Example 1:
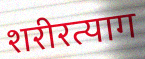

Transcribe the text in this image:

शरीरत्याग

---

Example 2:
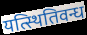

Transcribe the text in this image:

यत्स्थितिवन्ध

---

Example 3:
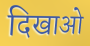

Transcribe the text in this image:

दिखाओ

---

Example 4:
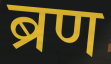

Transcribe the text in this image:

ब्रण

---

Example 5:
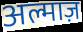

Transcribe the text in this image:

अल्माज़